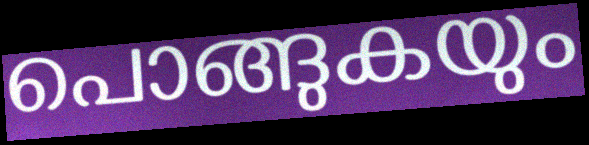
പൊങ്ങുകയും